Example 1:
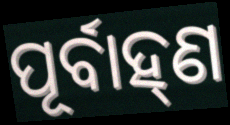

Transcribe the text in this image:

ପୂର୍ବାହ୍‌ଣ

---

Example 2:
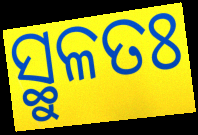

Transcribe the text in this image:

ସ୍ଥୁଳତଃ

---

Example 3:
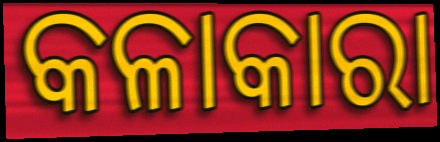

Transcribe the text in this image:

କଳାକାରା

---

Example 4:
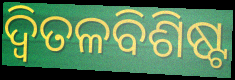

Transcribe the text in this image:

ଦ୍ୱିତଳବିଶିଷ୍ଟ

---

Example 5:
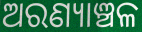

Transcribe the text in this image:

ଅରଣ୍ୟାଞ୍ଚଳ